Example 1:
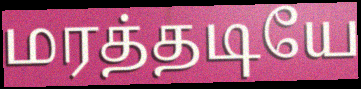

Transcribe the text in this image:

மரத்தடியே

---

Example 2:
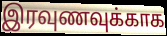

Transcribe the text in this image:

இரவுணவுக்காக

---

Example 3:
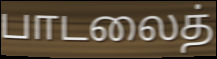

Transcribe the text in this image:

பாடலைத்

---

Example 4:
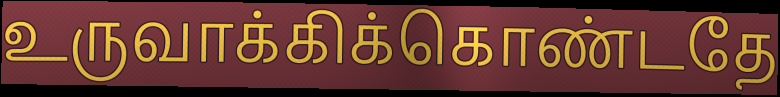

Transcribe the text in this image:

உருவாக்கிக்கொண்டதே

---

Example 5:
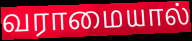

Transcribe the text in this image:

வராமையால்